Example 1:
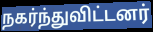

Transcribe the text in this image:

நகர்ந்துவிட்டனர்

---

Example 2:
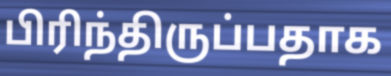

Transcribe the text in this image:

பிரிந்திருப்பதாக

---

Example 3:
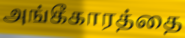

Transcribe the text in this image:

அங்கீகாரத்தை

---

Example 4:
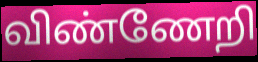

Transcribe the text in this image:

விண்ணேறி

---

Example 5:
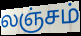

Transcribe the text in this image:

லஞ்சம்